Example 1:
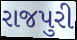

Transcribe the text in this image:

રાજપુરી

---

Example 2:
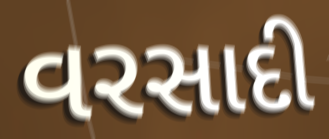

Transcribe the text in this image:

વરસાદી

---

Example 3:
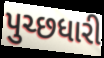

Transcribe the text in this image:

પુચ્છધારી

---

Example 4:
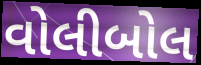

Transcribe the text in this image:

વોલીબોલ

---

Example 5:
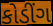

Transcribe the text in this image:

કોડીંગ